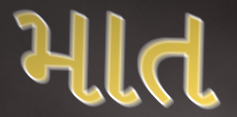
માત